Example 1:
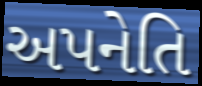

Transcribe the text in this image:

અપનેતિ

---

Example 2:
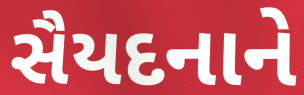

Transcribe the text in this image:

સૈયદનાને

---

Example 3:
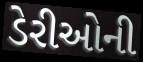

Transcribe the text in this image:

ડેરીઓની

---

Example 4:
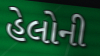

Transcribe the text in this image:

હેલોની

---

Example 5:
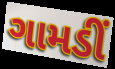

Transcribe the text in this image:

ગામડીં